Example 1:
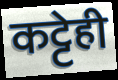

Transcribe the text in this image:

कट्टेही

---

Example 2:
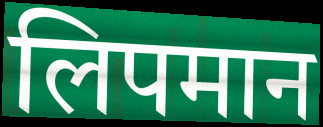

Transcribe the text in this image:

लिपमान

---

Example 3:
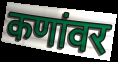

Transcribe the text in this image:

कणांवर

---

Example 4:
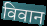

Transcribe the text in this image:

विवान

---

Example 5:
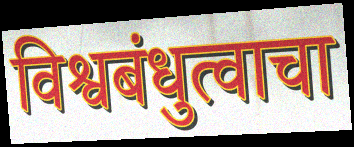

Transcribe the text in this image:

विश्वबंधुत्वाचा